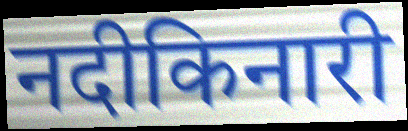
नदीकिनारी